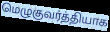
மெழுகுவர்த்தியாக